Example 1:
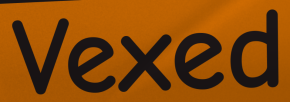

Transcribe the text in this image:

Vexed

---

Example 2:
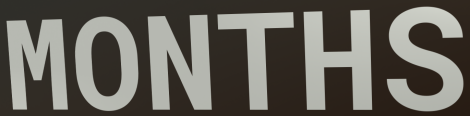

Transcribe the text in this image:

MONTHS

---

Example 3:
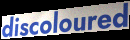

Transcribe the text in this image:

discoloured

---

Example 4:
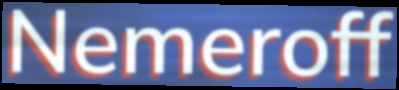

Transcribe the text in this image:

Nemeroff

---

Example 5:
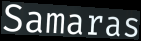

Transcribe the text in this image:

Samaras